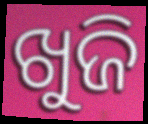
ଖୁଜି